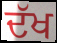
ਦੱਖ